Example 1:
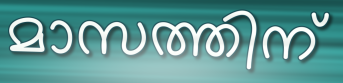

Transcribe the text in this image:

മാസത്തിന്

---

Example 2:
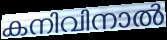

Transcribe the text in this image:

കനിവിനാൽ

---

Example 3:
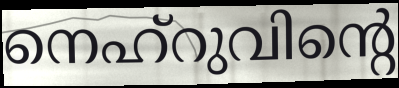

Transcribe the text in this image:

നെഹ്റുവിന്റെ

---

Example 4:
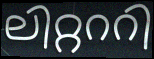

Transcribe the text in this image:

ലിറ്റററി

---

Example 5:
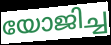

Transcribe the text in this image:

യോജിച്ച